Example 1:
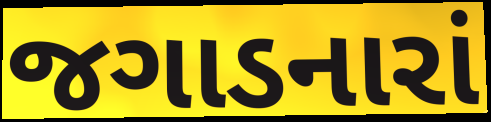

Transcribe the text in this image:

જગાડનારાં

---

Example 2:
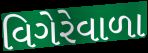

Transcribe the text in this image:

વિગેરેવાળા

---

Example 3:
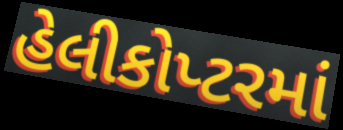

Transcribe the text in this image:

હેલીકોપ્ટરમાં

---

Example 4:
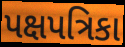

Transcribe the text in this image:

પક્ષપત્રિકા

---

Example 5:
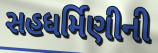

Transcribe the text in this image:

સહધર્મિણીની